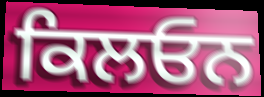
ਕਿਲਓਨ